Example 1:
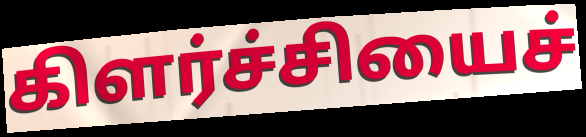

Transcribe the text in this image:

கிளர்ச்சியைச்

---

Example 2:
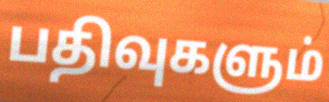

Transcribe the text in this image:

பதிவுகளும்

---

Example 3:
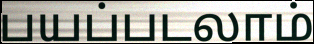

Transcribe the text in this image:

பயப்படலாம்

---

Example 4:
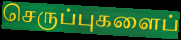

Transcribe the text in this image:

செருப்புகளைப்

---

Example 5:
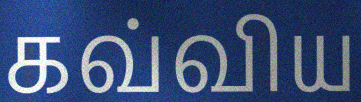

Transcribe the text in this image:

கவ்விய